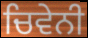
ਚਿਵੇਨੀ